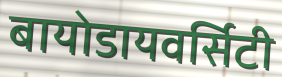
बायोडायवर्सिटी